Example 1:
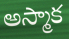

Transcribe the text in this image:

అస్మాక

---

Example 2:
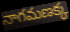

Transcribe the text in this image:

నాగమణక్క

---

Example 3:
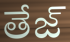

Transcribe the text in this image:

తేజ్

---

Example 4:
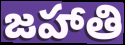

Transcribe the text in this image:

జహాతి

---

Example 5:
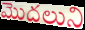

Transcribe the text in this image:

మొదలుని